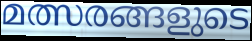
മത്സരങ്ങളുടെ